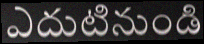
ఎదుటినుండి